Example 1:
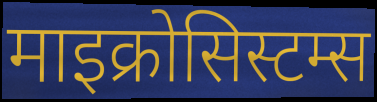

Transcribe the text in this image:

माइक्रोसिस्टम्स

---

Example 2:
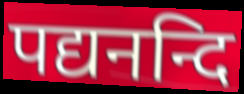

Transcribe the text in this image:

पद्यनन्दि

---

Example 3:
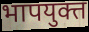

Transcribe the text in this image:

भापयुक्त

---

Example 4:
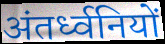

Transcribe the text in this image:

अंतर्ध्वनियों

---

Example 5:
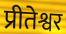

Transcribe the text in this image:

प्रीतेश्वर